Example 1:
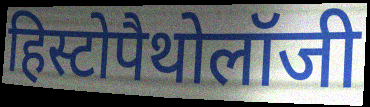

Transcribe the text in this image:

हिस्टोपैथोलॉजी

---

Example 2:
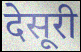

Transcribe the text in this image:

देसूरी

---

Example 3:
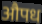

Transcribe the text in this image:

औपध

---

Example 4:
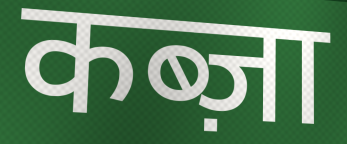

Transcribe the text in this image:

कब्ज़ा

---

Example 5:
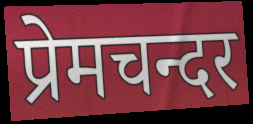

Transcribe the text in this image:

प्रेमचन्दर